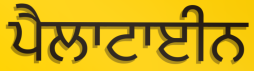
ਪੈਲਾਟਾਈਨ